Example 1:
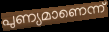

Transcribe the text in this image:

പുണ്യമാണെന്ന്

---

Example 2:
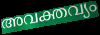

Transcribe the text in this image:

അവക്തവ്യം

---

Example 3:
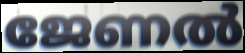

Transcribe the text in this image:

ജേണൽ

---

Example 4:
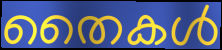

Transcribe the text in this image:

തൈകൾ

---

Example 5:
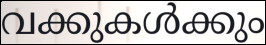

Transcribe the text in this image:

വക്കുകൾക്കും